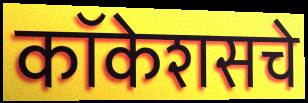
कॉकेशसचे